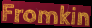
Fromkin